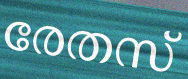
രേതസ്